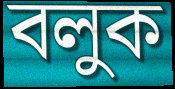
বলুক